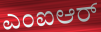
ಎಂಐಆರ್